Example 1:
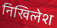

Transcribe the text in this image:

निखिलेश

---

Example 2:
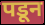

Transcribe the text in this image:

पडून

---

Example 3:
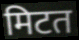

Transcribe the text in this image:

मिटत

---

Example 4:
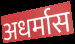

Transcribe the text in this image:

अधर्मास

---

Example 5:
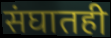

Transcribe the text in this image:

संघातही